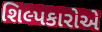
શિલ્પકારોએ